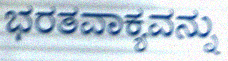
ಭರತವಾಕ್ಯವನ್ನು